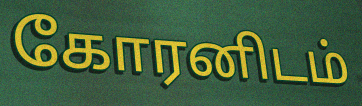
கோரனிடம்